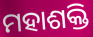
ମହାଶକ୍ତି